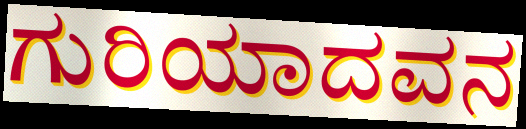
ಗುರಿಯಾದವನ